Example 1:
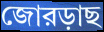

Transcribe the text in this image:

জোরড়াছ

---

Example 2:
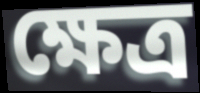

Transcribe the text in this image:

ক্ষেত্র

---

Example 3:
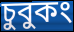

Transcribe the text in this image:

চুবুকং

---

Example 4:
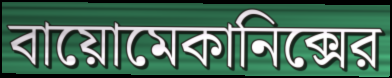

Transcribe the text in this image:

বায়োমেকানিক্সের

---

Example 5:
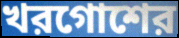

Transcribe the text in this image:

খরগোশের